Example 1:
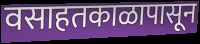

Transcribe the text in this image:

वसाहतकाळापासून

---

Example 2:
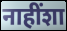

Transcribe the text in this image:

नाहींशा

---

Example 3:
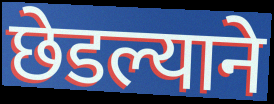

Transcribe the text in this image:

छेडल्याने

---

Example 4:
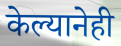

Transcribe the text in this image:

केल्यानेही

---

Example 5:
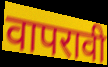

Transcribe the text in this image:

वापरावी